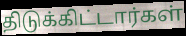
திடுக்கிட்டார்கள்